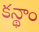
కన్థాం